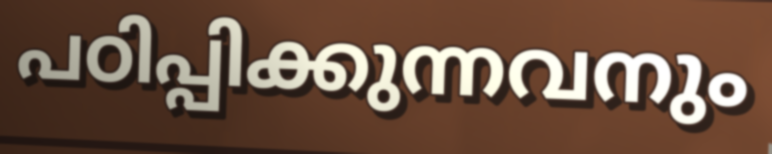
പഠിപ്പിക്കുന്നവനും